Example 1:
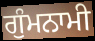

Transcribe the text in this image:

ਗੁੰਮਨਾਮੀ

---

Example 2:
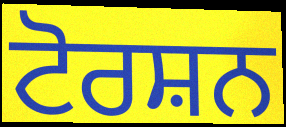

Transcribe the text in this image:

ਟੋਰਸ਼ਨ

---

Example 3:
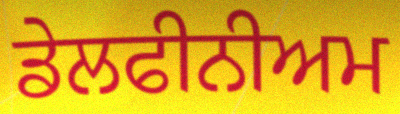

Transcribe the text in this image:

ਡੇਲਫੀਨੀਅਮ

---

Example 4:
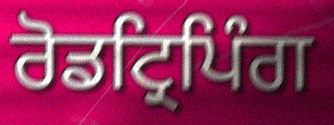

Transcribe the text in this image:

ਰੋਡਟ੍ਰਿਪਿੰਗ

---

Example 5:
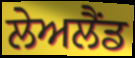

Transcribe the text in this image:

ਲੇਅਲੈਂਡ